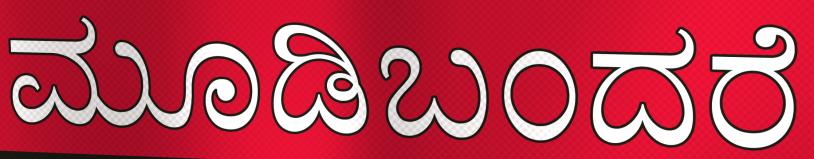
ಮೂಡಿಬಂದರೆ